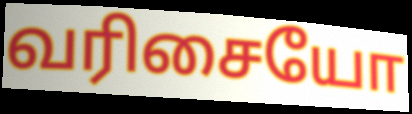
வரிசையோ